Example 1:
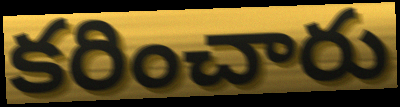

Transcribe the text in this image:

కరించారు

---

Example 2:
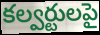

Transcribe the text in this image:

కల్వర్టులపై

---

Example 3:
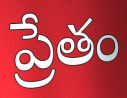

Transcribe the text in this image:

ప్రేతం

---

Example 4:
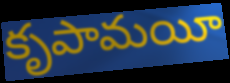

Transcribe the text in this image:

కృపామయీ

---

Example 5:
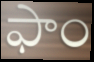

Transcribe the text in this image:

ఫాం